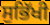
ਸੁਭਿੱਖੀ